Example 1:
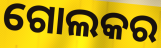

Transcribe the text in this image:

ଗୋଲକର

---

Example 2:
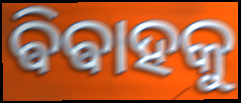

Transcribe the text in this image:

ଵିଵାହକୁ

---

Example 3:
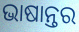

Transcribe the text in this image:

ଭାଷାନ୍ତର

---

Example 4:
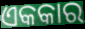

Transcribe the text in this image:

ଏକକାର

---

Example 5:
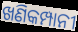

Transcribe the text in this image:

ଖଣିକମ୍ପାନୀ